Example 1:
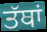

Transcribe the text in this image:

ਤੱਥਾਂ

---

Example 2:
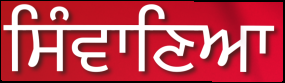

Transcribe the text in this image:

ਸਿੰਵਾਣਿਆ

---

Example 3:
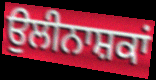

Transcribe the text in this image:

ਉਲੀਨਾਸ਼ਕਾਂ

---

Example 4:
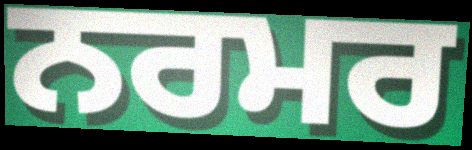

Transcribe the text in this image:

ਨਰਮਰ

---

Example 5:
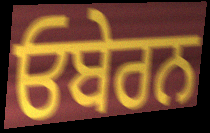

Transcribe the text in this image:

ਓਬੇਰਨ